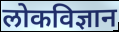
लोकविज्ञान